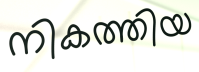
നികത്തിയ